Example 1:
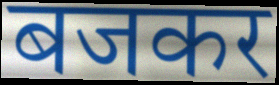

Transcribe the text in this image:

बजकर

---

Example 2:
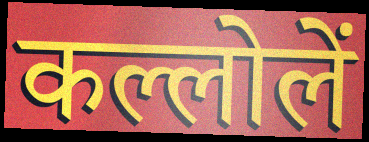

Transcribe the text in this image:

कल्लोलें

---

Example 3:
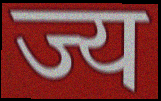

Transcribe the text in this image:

ज्य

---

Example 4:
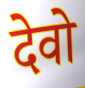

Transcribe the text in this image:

देवो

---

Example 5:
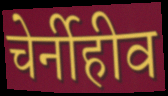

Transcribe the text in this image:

चेर्नीहीव